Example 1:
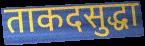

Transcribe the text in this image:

ताकदसुद्धा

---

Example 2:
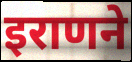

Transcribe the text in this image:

इराणने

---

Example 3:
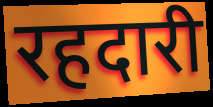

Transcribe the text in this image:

रहदारी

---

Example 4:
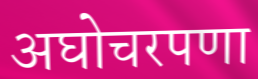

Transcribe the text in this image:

अघोचरपणा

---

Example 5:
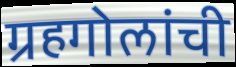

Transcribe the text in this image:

ग्रहगोलांची